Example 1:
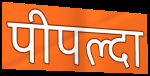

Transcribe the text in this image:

पीपल्दा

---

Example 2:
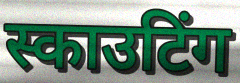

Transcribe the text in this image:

स्काउटिंग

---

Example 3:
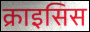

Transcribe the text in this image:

क्राइसिस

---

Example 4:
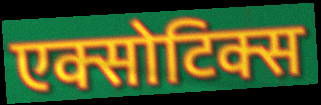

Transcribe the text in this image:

एक्सोटिक्स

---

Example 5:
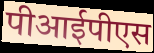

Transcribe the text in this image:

पीआईपीएस